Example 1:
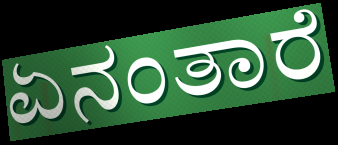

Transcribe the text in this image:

ಏನಂತಾರೆ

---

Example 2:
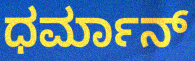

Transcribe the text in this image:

ಧರ್ಮಾನ್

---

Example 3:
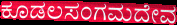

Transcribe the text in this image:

ಕೂಡಲಸಂಗಮದೇವ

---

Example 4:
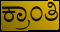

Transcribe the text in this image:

ಕ್ರಾಂತಿ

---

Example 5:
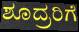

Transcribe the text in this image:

ಶೂದ್ರರಿಗೆ